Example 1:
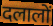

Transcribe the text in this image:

दलालों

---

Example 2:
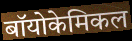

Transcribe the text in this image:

बॉयोकेमिकल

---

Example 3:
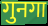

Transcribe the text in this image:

गुनगा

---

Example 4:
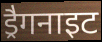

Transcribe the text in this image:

ड्रैगनाइट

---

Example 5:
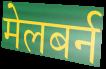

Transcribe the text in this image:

मेलबर्न